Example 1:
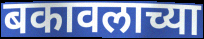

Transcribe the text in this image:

बकावलाच्या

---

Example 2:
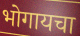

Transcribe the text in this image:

भोगायचा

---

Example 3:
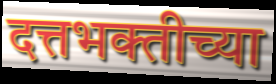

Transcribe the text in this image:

दत्तभक्तीच्या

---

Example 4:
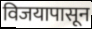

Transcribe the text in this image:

विजयापासून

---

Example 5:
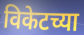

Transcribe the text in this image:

विकेटच्या